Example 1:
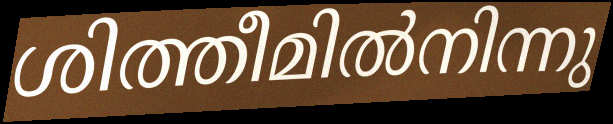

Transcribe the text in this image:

ശിത്തീമിൽനിന്നു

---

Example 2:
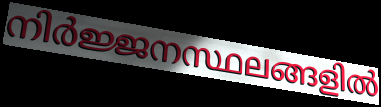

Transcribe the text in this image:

നിർജ്ജനസ്ഥലങ്ങളിൽ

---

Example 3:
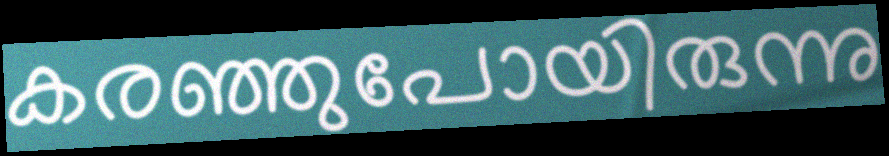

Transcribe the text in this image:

കരഞ്ഞുപോയിരുന്നു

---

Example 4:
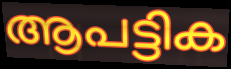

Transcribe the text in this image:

ആപട്ടിക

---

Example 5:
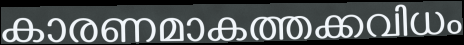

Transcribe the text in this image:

കാരണമാകത്തക്കവിധം